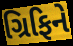
ગ્રિફિને